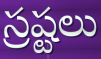
స్రష్టలు